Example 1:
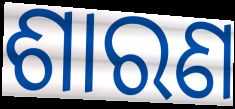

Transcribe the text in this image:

ଶାରଣ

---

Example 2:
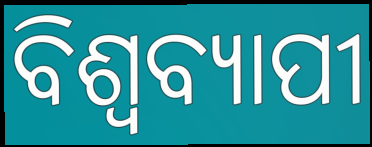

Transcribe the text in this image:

ବିଶ୍ୱବ୍ୟାପୀ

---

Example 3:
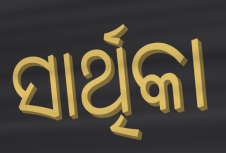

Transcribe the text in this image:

ସାର୍ଥିକା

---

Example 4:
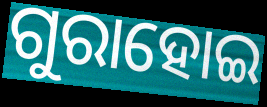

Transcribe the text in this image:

ଗୁରାହୋଇ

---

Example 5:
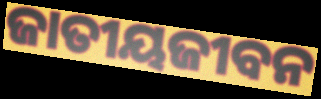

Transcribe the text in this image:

ଜାତୀୟଜୀବନ